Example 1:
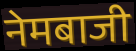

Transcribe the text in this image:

नेमबाजी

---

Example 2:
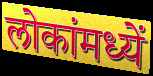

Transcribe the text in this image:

लोकांमध्यें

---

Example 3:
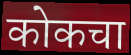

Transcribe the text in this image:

कोकचा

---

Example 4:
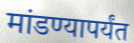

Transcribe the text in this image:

मांडण्यापर्यंत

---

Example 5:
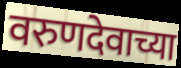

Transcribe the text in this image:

वरुणदेवाच्या